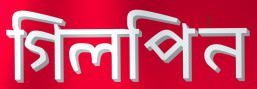
গিলপিন